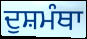
ਦੁਸ਼ਮੰਥਾ